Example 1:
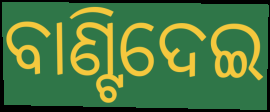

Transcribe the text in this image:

ବାଣ୍ଟିଦେଇ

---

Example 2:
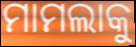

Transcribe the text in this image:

ମାମଲାକୁ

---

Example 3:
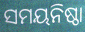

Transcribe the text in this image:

ସମୟନିଷ୍ଠା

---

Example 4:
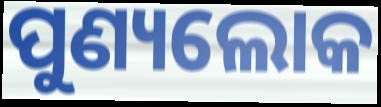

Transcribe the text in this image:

ପୁଣ୍ୟଲୋକ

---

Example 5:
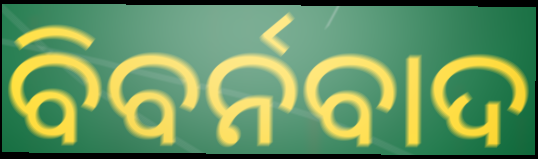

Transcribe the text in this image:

ବିବର୍ନବାଦ